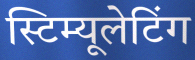
स्टिम्यूलेटिंग